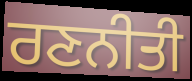
ਰਣਨੀਤੀ